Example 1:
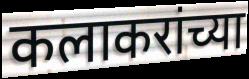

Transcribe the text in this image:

कलाकरांच्या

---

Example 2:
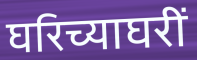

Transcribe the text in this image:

घरिच्याघरीं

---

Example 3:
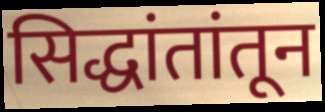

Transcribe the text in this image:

सिद्धांतांतून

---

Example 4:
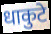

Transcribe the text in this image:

धाकुटे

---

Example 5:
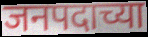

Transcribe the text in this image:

जनपदाच्या